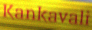
Kankavali